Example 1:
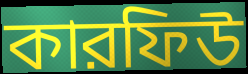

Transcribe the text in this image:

কারফিউ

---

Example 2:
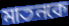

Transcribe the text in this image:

মাতনকে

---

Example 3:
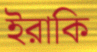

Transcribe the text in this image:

ইরাকি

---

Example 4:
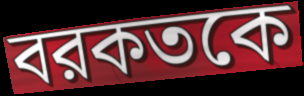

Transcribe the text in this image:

বরকতকে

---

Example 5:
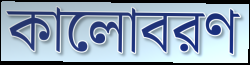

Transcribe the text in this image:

কালোবরণ